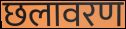
छलावरण